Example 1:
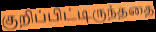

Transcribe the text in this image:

குறிப்பிட்டிருந்ததை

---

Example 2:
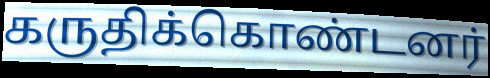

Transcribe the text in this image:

கருதிக்கொண்டனர்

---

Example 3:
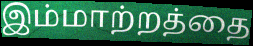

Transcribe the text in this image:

இம்மாற்றத்தை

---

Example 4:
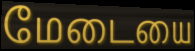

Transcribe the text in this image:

மேடையை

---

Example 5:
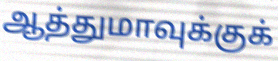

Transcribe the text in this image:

ஆத்துமாவுக்குக்